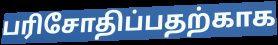
பரிசோதிப்பதற்காக